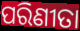
ପରିଣୀତା